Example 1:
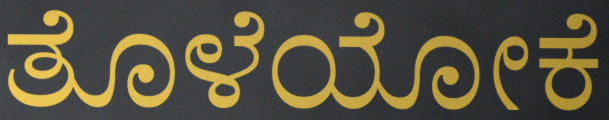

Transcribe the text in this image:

ತೊಳೆಯೋಕೆ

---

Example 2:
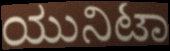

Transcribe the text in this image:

ಯುನಿಟಾ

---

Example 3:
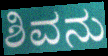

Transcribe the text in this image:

ಶಿವನು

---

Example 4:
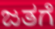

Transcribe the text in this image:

ಜತಗೆ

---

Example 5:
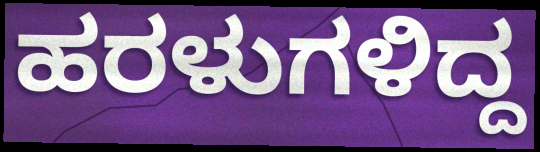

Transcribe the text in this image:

ಹರಳುಗಳಿದ್ದ